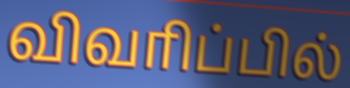
விவரிப்பில்